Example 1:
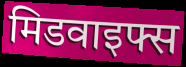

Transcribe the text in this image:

मिडवाइफ्स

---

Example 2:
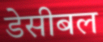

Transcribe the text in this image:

डेसीबल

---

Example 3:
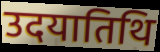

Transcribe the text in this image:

उदयातिथि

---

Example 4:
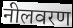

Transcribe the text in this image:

नीलवरण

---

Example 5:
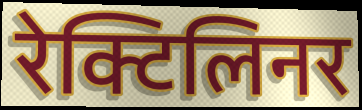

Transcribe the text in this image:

रेक्टिलिनर